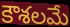
కౌశలమే